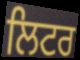
ਲਿਟਰ